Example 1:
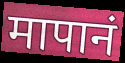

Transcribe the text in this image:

मापानं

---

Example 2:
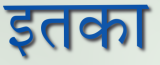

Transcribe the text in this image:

इतका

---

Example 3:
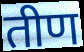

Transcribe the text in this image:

तीण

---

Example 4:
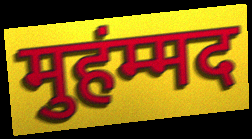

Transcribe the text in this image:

मुहंम्मद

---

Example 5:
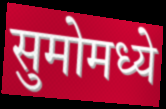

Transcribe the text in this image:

सुमोमध्ये